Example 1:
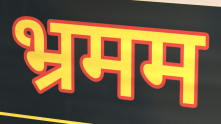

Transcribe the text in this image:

भ्रमम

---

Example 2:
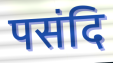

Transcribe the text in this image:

पसंदि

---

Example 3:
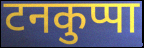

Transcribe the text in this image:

टनकुप्पा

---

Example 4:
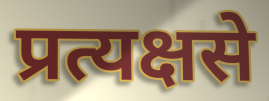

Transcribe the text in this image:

प्रत्यक्षसे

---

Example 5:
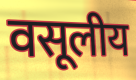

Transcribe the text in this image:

वसूलीय